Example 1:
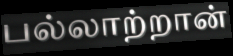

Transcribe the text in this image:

பல்லாற்றான்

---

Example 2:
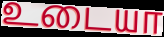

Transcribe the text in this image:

உடையா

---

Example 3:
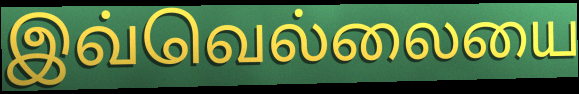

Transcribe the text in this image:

இவ்வெல்லையை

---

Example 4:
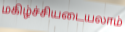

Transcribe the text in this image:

மகிழ்ச்சியடையலாம்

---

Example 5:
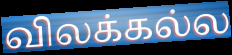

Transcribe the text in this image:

விலக்கல்ல